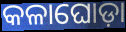
କଳାଘୋଡ଼ା